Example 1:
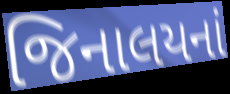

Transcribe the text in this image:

જિનાલયનાં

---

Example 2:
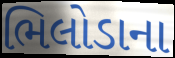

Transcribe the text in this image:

ભિલોડાના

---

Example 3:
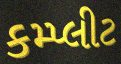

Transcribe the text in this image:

કમ્પ્લીટ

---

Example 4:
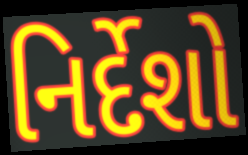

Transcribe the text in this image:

નિર્દેશો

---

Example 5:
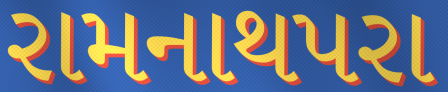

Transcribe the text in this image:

રામનાથપરા